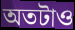
অতটাও